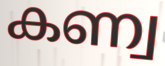
കണ്വ